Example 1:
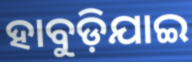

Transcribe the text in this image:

ହାବୁଡ଼ିଯାଇ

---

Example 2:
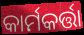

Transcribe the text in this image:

କାର୍ମକର୍ତ୍ତା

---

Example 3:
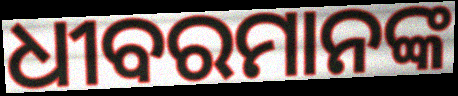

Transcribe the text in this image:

ଧୀବରମାନଙ୍କ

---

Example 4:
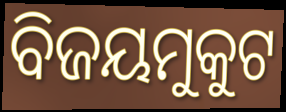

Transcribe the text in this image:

ବିଜୟମୁକୁଟ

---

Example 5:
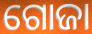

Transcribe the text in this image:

ଗୋଜା